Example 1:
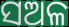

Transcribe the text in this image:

ସଅଳ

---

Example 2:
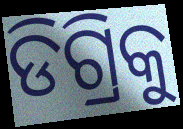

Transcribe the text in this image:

ଡିଗ୍ରିକୁ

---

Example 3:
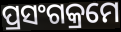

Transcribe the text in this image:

ପ୍ରସଂଗକ୍ରମେ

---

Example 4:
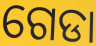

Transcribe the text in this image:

ଗେଡା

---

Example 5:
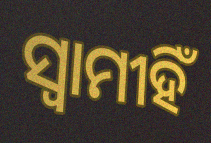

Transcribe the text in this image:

ସ୍ଵାମୀହିଁ